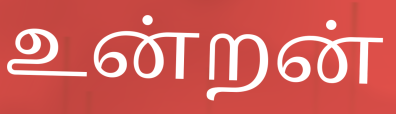
உன்றன்